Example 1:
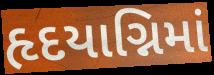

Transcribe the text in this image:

હૃદયાગ્નિમાં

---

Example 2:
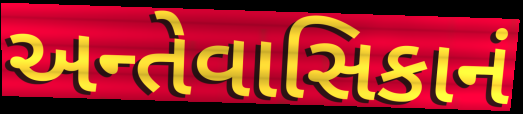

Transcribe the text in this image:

અન્તેવાસિકાનં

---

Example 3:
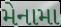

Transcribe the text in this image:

મેનામા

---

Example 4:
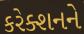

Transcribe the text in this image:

કરેક્શનને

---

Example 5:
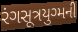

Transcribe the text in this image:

રંગસૂત્રયુગ્મની